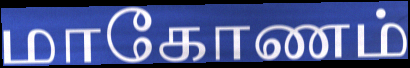
மாகோணம்